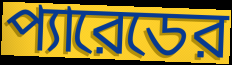
প্যারেডের